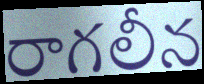
రాగలీన